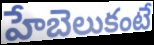
హేబెలుకంటే